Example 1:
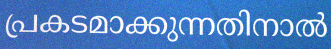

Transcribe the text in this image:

പ്രകടമാക്കുന്നതിനാൽ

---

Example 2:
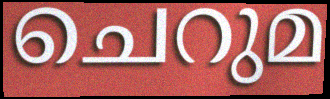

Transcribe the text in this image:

ചെറുമ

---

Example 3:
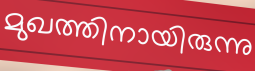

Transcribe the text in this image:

മുഖത്തിനായിരുന്നു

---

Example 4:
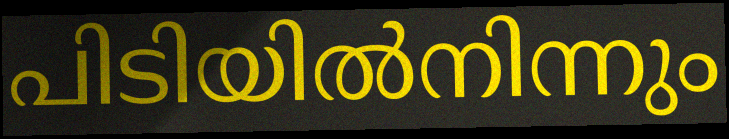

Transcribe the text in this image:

പിടിയിൽനിന്നും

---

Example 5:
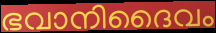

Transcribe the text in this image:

ഭവാനിദൈവം